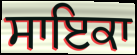
ਸਾਇਕਾ